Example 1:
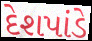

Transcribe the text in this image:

દેશપાંડે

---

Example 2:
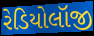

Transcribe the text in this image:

રેડિયોલૉજી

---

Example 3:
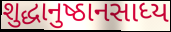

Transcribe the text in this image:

શુદ્ધાનુષ્ઠાનસાધ્ય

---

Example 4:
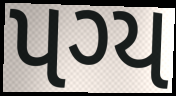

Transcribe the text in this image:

પગ્ય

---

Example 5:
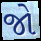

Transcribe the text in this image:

જો